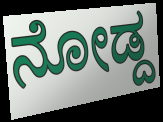
ನೋಡ್ದ